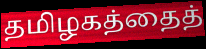
தமிழகத்தைத்